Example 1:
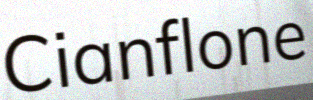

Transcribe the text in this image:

Cianflone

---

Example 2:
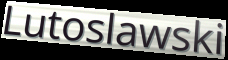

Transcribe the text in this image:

Lutoslawski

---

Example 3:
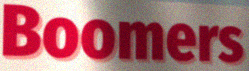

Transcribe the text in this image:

Boomers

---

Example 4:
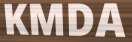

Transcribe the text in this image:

KMDA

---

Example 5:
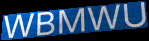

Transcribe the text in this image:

WBMWU